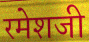
रमेशजी